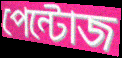
পেন্টোজ